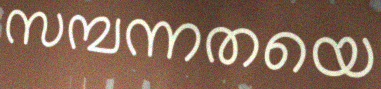
സമ്പന്നതയെ